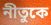
নীতুকে